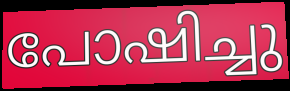
പോഷിച്ചു